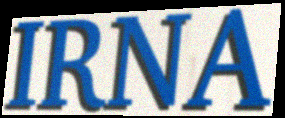
IRNA